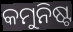
କମୁନିଷ୍ଟ